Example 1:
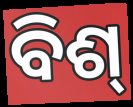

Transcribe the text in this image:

ବିଶ୍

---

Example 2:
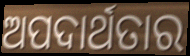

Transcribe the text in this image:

ଅପଦାର୍ଥତାର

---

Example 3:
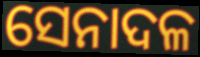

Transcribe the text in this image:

ସେନାଦଳ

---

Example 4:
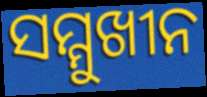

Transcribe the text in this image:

ସମ୍ମୁଖୀନ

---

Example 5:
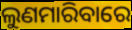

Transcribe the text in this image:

ଲୁଣମାରିବାରେ